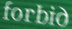
forbid